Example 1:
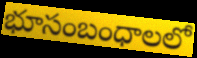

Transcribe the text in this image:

భూసంబంధాలలో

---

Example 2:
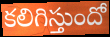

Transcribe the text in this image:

కలిగిస్తుందో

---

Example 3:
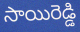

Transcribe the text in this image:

సాయిరెడ్డి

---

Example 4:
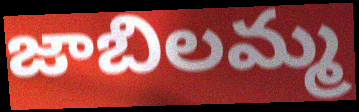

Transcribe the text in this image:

జాబిలమ్మ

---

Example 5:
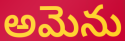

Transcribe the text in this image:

అమెను